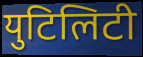
युटिलिटी